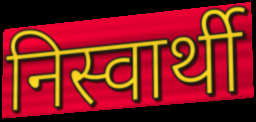
निस्वार्थी